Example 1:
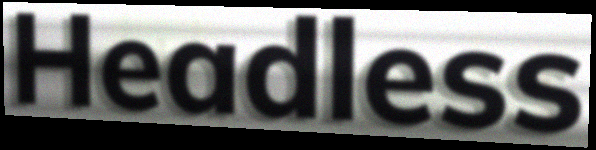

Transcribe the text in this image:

Headless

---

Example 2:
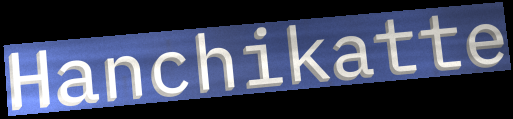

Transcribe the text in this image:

Hanchikatte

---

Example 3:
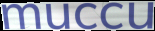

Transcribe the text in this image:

muccu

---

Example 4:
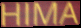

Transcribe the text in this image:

HIMA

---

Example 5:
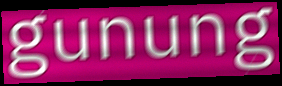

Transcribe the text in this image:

gunung